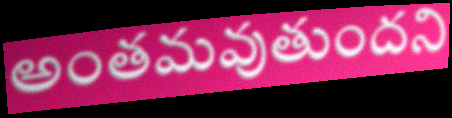
అంతమవుతుందని